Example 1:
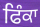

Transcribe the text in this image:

ਫਿੰਕਾ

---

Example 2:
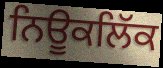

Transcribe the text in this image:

ਨਿਊਕਲਿੱਕ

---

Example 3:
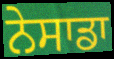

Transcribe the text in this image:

ਨੇਸਾਡਾ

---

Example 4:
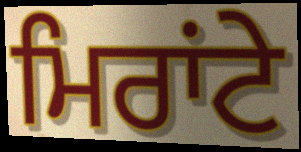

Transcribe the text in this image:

ਮਿਰਾਂਟੇ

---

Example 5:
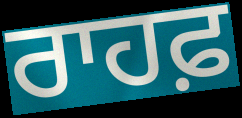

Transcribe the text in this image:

ਰਾਹਫ਼